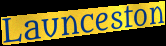
Launceston